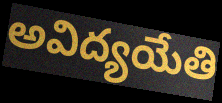
అవిద్యయేతి